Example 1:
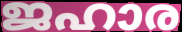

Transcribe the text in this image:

ജഹാര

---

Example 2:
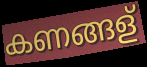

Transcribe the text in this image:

കണങ്ങള്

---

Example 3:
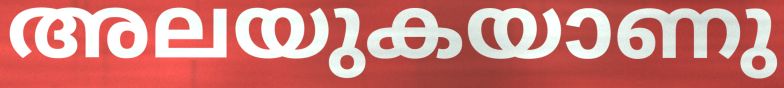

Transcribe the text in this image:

അലയുകയാണു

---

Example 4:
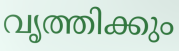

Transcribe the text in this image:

വൃത്തിക്കും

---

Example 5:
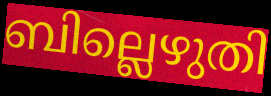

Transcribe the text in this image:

ബില്ലെഴുതി